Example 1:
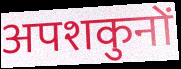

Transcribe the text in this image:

अपशकुनों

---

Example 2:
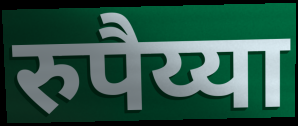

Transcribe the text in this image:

रुपैय्या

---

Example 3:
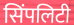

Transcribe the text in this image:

सिंपलिटी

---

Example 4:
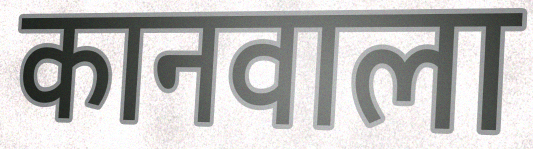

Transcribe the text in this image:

कानवाला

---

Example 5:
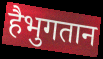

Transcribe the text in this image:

हैभुगतान